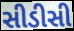
સીડીસી